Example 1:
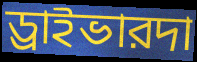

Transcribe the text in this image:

ড্রাইভারদা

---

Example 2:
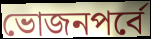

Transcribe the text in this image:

ভোজনপর্বে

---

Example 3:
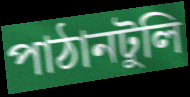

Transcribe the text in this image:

পাঠানটুলি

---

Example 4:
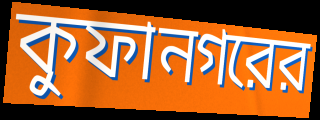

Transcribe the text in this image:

কুফানগরের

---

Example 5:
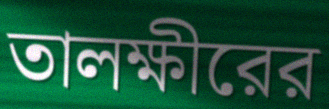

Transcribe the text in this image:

তালক্ষীরের